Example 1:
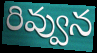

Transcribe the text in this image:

రివ్వున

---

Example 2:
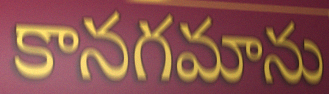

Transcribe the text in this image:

కానగమాను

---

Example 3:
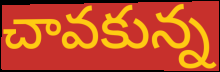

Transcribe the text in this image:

చావకున్న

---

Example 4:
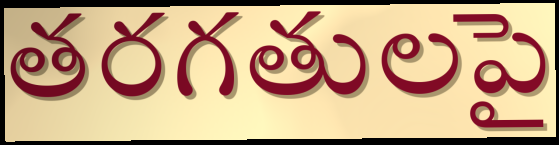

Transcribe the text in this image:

తరగతులపై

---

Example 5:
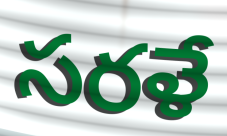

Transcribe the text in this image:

సరళే